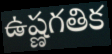
ఉష్ణగతిక